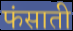
फंसाती